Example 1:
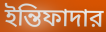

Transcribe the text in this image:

ইন্তিফাদার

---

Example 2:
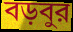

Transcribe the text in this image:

বড়বুর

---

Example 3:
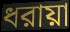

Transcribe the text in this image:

ধরায়া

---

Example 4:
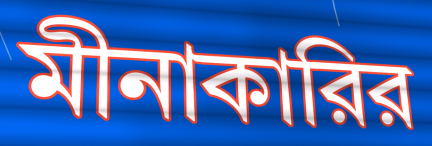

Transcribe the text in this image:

মীনাকারির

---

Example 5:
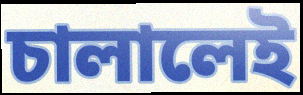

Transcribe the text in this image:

চালালেই